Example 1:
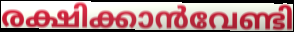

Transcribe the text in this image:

രക്ഷിക്കാൻവേണ്ടി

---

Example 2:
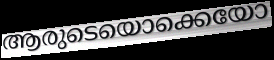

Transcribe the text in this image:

ആരുടെയൊക്കെയോ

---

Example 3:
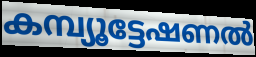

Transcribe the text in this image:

കമ്പ്യൂട്ടേഷണൽ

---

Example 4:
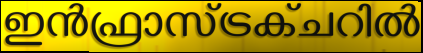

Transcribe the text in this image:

ഇൻഫ്രാസ്ട്രക്ചറിൽ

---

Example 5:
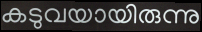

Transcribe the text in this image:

കടുവയായിരുന്നു